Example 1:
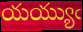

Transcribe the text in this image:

యయ్యుఁ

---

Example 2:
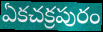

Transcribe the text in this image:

ఏకచక్రపురం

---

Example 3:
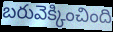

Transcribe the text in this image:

బరువెక్కించింది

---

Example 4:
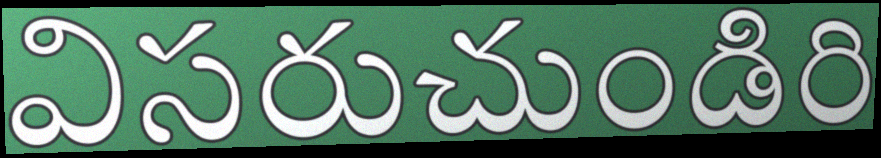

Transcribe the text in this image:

విసరుచుండిరి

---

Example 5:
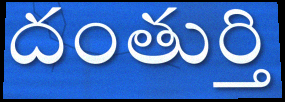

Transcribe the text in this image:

దంతుర్తి